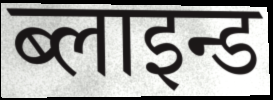
ब्लाइन्ड